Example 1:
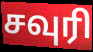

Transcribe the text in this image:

சவுரி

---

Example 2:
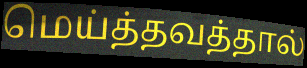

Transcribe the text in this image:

மெய்த்தவத்தால்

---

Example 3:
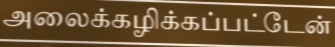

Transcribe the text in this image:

அலைக்கழிக்கப்பட்டேன்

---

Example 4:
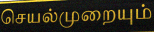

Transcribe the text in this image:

செயல்முறையும்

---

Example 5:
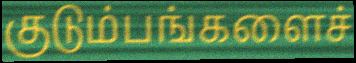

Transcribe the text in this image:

குடும்பங்களைச்